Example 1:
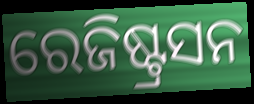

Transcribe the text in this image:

ରେଜିଷ୍ଟ୍ରସନ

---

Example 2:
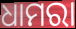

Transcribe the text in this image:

ଧାମରା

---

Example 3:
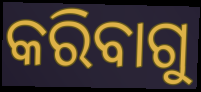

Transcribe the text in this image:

କରିବାଗୁ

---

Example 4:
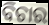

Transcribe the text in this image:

ବିଚାର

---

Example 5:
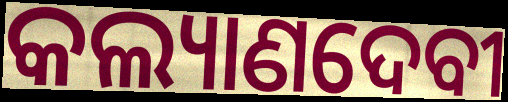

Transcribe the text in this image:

କଲ୍ୟାଣଦେବୀ